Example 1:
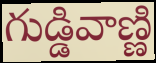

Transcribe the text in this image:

గుడ్డివాణ్ణి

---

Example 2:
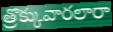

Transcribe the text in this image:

త్రొక్కువారలారా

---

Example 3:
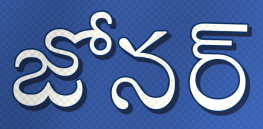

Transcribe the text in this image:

జోనర్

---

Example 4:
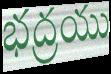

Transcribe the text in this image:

భద్రయు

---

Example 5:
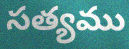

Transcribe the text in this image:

సత్యము